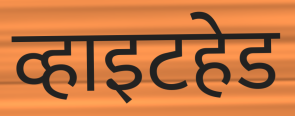
व्हाइटहेड